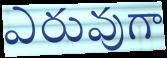
ఎరువుగా